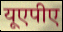
यूएपीए